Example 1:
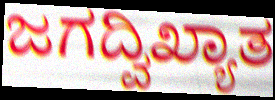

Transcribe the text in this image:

ಜಗದ್ವಿಖ್ಯಾತ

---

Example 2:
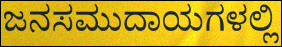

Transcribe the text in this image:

ಜನಸಮುದಾಯಗಳಲ್ಲಿ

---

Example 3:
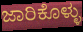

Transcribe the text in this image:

ಜಾರಿಕೊಳ್ಳು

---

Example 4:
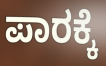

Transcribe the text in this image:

ಪಾರಕ್ಕೆ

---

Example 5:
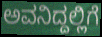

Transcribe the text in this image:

ಅವನಿದ್ದಲ್ಲಿಗೆ